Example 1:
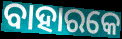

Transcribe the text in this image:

ବାହାରକେ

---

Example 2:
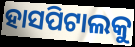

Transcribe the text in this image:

ହାସପିଟାଲକୁ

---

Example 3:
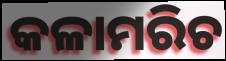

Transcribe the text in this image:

କଳାମରିଚ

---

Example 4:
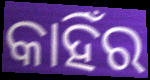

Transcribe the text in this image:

କାହିଁର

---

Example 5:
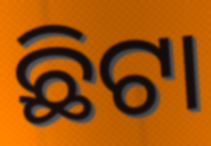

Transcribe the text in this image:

ଛିଟା